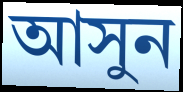
আসুন